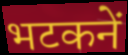
भटकनें